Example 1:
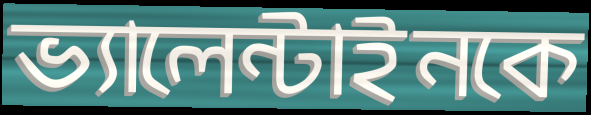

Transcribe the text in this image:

ভ্যালেন্টাইনকে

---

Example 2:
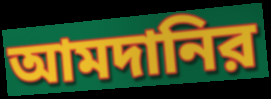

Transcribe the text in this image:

আমদানির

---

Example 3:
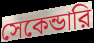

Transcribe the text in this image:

সেকেন্ডারি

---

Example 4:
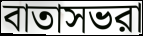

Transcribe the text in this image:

বাতাসভরা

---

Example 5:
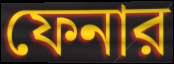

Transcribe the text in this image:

ফেনার